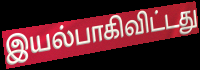
இயல்பாகிவிட்டது